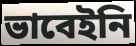
ভাবেইনি